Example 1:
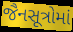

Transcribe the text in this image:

જૈનસૂત્રોમાં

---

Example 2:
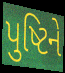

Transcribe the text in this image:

પુષ્ટિને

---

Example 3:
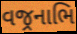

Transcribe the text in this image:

વજ્રનાભિ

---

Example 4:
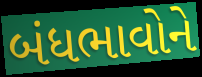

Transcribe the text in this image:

બંધભાવોને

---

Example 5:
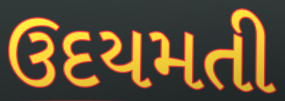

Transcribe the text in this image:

ઉદયમતી